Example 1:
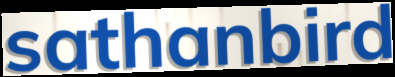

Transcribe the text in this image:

sathanbird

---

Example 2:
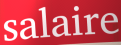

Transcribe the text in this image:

salaire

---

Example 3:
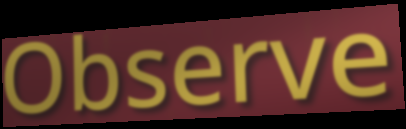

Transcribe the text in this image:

Observe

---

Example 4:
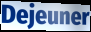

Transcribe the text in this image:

Dejeuner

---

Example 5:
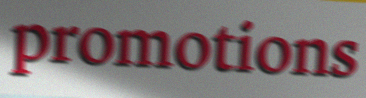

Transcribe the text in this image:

promotions